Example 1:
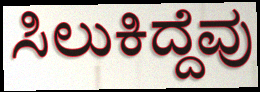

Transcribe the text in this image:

ಸಿಲುಕಿದ್ದೆವು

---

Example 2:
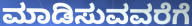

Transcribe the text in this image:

ಮಾಡಿಸುವವರೆಗೆ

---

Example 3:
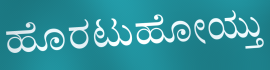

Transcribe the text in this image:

ಹೊರಟುಹೋಯ್ತು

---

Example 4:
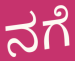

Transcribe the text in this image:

ನಗೆ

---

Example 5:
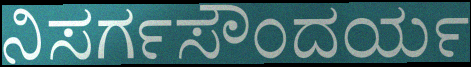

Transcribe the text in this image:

ನಿಸರ್ಗಸೌಂದರ್ಯ